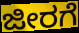
ಜೀರಗೆ